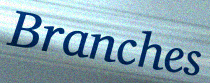
Branches